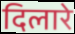
दिलारे